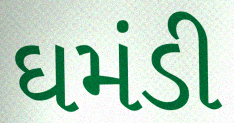
ઘમંડી